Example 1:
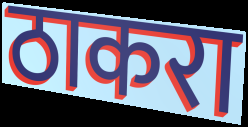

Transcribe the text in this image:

ठाकरा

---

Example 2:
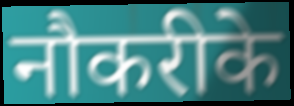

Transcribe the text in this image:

नौकरीके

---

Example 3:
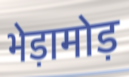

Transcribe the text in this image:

भेड़ामोड़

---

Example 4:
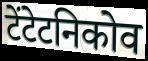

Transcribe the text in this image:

टेंटेटनिकोव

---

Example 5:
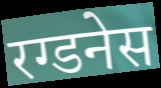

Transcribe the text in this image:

रग्डनेस